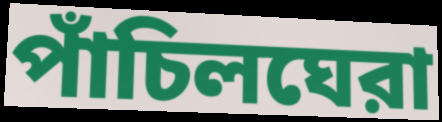
পাঁচিলঘেরা